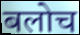
बलोच